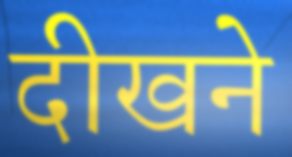
दीखने